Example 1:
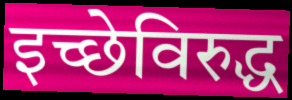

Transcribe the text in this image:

इच्छेविरुद्ध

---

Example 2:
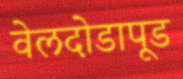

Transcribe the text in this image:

वेलदोडापूड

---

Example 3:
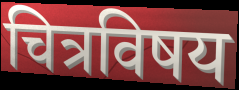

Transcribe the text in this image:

चित्रविषय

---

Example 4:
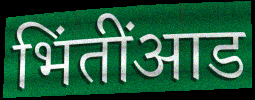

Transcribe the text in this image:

भिंतींआड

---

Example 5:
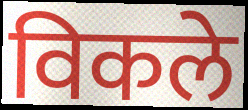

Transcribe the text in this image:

विकले